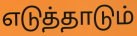
எடுத்தாடும்